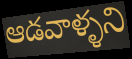
ఆడవాళ్ళని